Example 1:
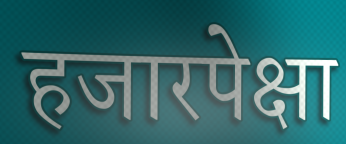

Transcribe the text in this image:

हजारपेक्षा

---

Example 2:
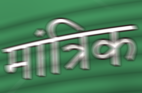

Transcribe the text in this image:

मांत्रिक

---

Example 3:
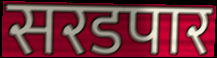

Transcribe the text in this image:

सरडपार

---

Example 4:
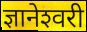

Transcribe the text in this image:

ज्ञानेश्‍वरी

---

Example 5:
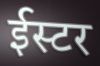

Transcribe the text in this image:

ईस्टर